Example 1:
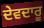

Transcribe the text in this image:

ਦੇਵਦਾਰੂ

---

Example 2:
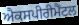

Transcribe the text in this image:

ਐਕਸਪੀਰੀਮੈਂਟਲ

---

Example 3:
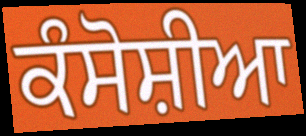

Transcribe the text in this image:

ਕੰਸੋਸ਼ੀਆ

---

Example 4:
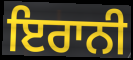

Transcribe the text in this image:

ਇਰਾਨੀ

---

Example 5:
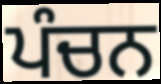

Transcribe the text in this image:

ਪੰਚਨ